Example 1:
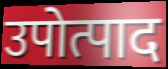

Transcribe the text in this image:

उपोत्पाद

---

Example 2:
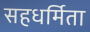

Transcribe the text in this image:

सहधर्मिता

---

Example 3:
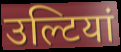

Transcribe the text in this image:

उल्टियां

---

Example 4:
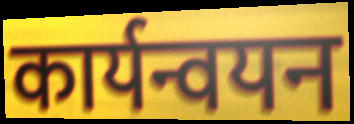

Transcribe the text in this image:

कार्यन्वयन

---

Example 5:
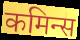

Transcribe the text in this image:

कमिन्स